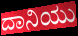
ದಾನಿಯು